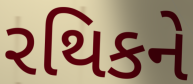
રથિકને